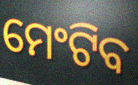
ମେଂଟିବ